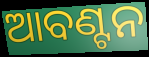
ଆବଣ୍ଟନ